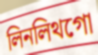
লিনলিথগো